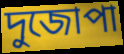
দুজোপা